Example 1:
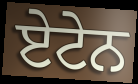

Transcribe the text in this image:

ਏਟੇਨ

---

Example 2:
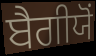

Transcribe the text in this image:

ਬੈਗੀਯੋਂ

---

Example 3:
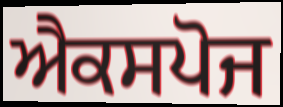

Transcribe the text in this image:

ਐਕਸਪੋਜ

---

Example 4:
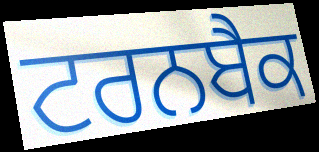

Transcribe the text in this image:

ਟਰਨਬੈਕ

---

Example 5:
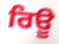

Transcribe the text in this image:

ਰਿਊ